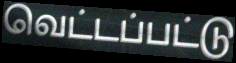
வெட்டப்பட்டு